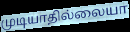
முடியாதில்லையா